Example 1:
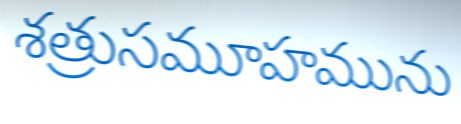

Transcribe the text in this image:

శత్రుసమూహమును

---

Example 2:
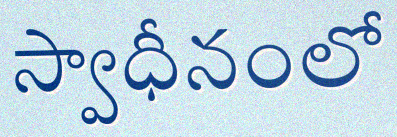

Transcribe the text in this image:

స్వాధీనంలో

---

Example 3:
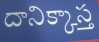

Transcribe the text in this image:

దానిక్కాస్త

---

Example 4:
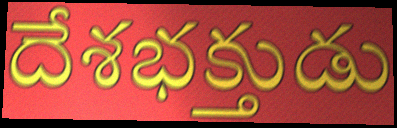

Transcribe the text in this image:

దేశభక్తుడు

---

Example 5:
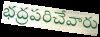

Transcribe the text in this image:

భద్రపరిచేవారు